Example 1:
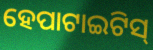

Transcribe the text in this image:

ହେପାଟାଇଟିସ୍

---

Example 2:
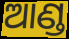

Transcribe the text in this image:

ଆଣ୍ଡ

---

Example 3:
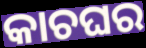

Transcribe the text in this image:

କାଚଘର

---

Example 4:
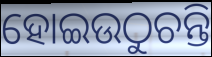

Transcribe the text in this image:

ହୋଇଉଠୁଚନ୍ତି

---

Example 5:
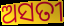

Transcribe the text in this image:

ଅସତୀ